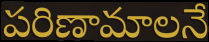
పరిణామాలనే